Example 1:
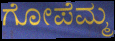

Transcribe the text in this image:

ಗೋಪೆಮ್ಮ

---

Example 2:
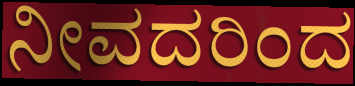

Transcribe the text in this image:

ನೀವದರಿಂದ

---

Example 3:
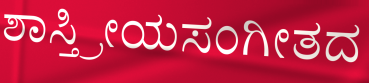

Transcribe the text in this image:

ಶಾಸ್ತ್ರೀಯಸಂಗೀತದ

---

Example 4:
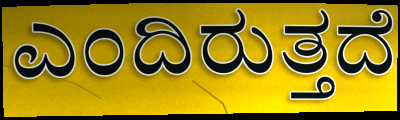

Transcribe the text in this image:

ಎಂದಿರುತ್ತದೆ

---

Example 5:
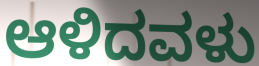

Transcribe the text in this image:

ಆಳಿದವಳು